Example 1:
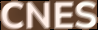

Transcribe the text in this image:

CNES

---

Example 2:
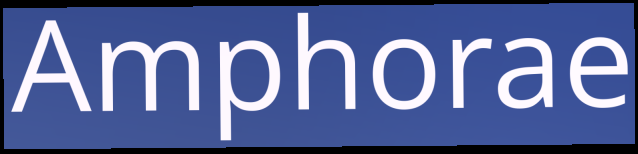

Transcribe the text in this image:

Amphorae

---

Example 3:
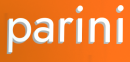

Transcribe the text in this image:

parini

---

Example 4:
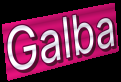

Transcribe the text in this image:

Galba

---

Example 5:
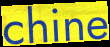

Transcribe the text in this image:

chine